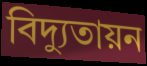
বিদ্যুতায়ন